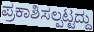
ಪ್ರಕಾಶಿಸಲ್ಪಟ್ಟದ್ದು